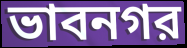
ভাবনগর